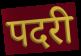
पदरी